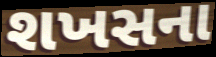
શખસના